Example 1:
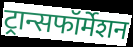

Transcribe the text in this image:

ट्रान्सफॉर्मेशन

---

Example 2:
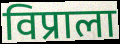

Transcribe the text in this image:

विप्राला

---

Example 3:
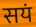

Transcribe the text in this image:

सयं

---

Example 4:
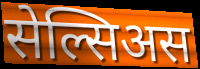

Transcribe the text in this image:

सेल्सिअस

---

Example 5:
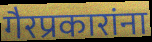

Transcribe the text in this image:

गैरप्रकारांना